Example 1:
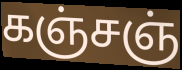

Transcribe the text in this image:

கஞ்சஞ்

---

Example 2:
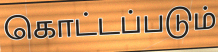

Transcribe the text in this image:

கொட்டப்படும்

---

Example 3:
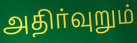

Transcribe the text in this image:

அதிர்வுறும்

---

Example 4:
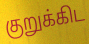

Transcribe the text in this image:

குறுக்கிட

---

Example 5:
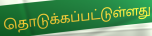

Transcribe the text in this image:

தொடுக்கப்பட்டுள்ளது